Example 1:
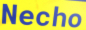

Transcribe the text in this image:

Necho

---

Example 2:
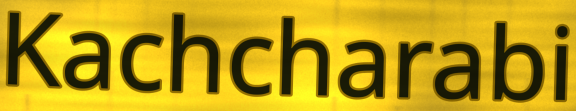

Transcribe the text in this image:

Kachcharabi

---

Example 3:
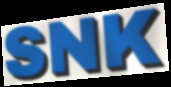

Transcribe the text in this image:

SNK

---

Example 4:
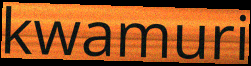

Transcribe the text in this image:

kwamuri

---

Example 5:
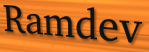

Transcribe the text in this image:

Ramdev